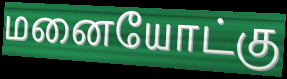
மனையோட்கு